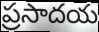
ప్రసాదయ